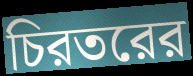
চিরতরের